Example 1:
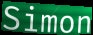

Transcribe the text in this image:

Simon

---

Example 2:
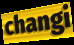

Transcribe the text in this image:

changi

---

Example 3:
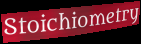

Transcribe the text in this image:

Stoichiometry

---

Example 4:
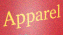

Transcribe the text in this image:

Apparel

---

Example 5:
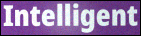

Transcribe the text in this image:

Intelligent